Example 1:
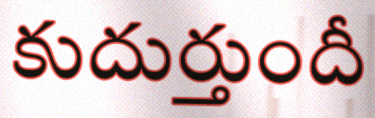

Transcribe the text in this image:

కుదుర్తుందీ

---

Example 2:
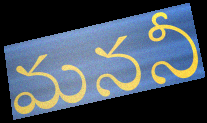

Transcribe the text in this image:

మననీ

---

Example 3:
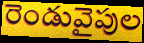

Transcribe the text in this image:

రెండువైపుల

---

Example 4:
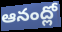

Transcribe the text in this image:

ఆనంద్లో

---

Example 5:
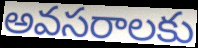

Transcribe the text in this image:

అవసరాలకు